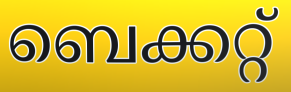
ബെക്കറ്റ്